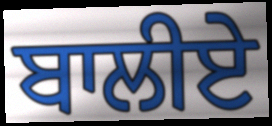
ਬਾਲੀਏ